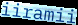
iiramii